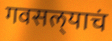
गवसल्याचं